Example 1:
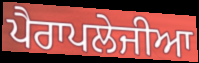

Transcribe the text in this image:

ਪੈਰਾਪਲੇਜੀਆ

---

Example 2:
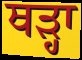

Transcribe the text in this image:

ਥੜ੍ਹਾ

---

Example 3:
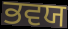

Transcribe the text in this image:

ਭਵਯ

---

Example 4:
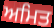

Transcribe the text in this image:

ਅਮਿਤ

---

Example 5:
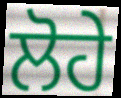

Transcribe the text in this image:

ਲੋਹੇ